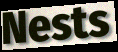
Nests